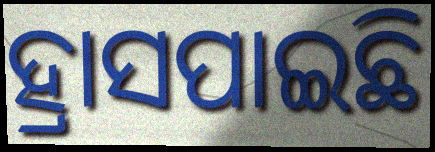
ହ୍ରାସପାଇଛି